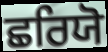
ਛਰਿਯੋ